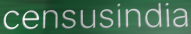
censusindia